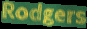
Rodgers